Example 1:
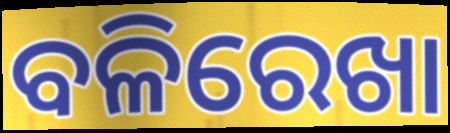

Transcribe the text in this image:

ବଳିରେଖା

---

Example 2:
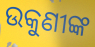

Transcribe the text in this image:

ଉକୁଣୀଙ୍କ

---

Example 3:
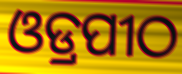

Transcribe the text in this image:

ଓଡ୍ରପୀଠ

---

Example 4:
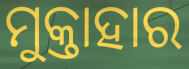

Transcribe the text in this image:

ମୁକ୍ତାହାର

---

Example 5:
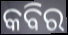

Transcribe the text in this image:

କବିର